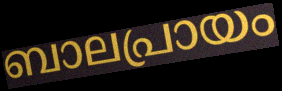
ബാലപ്രായം